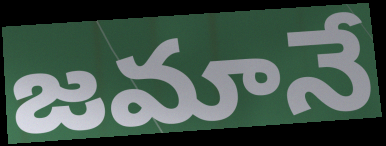
జమానే